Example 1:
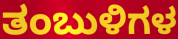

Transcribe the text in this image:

ತಂಬುಳಿಗಳ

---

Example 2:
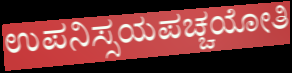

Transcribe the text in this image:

ಉಪನಿಸ್ಸಯಪಚ್ಚಯೋತಿ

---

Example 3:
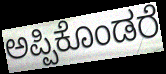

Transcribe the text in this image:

ಅಪ್ಪಿಕೊಂಡರೆ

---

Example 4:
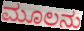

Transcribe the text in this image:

ಮೂಲನು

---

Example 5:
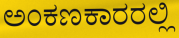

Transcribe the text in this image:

ಅಂಕಣಕಾರರಲ್ಲಿ